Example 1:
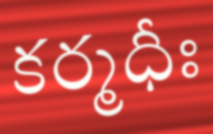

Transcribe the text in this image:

కర్మధీః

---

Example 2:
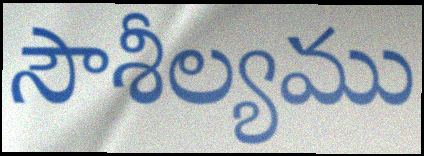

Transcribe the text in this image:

సౌశీల్యము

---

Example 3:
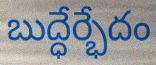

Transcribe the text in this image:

బుద్ధేర్భేదం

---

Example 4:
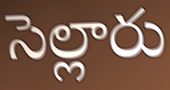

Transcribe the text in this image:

సెల్లారు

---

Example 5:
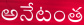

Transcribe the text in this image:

అనేటంత